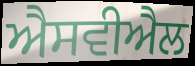
ਐਸਵੀਐਲ